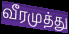
வீரமுத்து